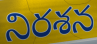
నిరశన